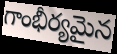
గాంభీర్యమైన